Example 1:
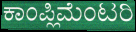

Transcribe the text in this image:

ಕಾಂಪ್ಲಿಮೆಂಟರಿ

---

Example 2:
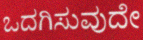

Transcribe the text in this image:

ಒದಗಿಸುವುದೇ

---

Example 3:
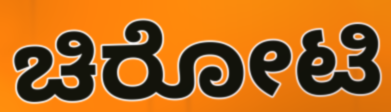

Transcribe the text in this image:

ಚಿರೋಟಿ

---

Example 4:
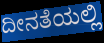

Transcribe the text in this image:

ದೀನತೆಯಲ್ಲಿ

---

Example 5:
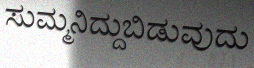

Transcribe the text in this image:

ಸುಮ್ಮನಿದ್ದುಬಿಡುವುದು